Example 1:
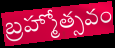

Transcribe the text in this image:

బ్రహ్మోత్సవం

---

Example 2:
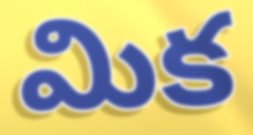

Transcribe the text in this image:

మిక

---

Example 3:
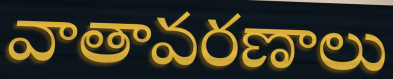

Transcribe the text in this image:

వాతావరణాలు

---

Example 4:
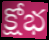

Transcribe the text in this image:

క్షోభ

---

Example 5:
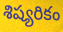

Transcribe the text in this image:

శిష్యరికం